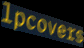
lpcovers